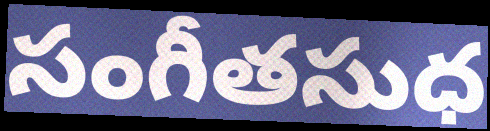
సంగీతసుధ